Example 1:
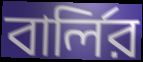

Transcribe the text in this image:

বার্লির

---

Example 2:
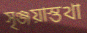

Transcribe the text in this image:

সৃঞ্জয়াস্তথা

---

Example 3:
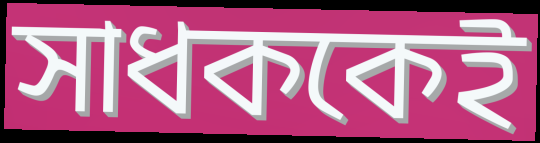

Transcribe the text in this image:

সাধককেই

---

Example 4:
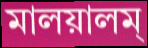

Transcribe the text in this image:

মালয়ালম্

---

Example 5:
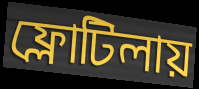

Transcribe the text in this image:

ফ্লোটিলায়